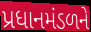
પ્રધાનમંડળને